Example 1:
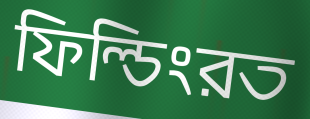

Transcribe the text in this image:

ফিল্ডিংরত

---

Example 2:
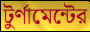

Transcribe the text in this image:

টুর্ণামেন্টের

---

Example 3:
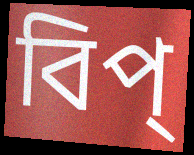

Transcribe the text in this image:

বিপ্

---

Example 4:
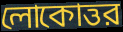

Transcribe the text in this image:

লোকোত্তর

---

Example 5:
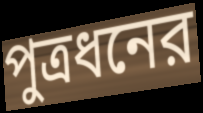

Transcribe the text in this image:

পুত্রধনের